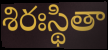
శిరఃస్థితా